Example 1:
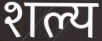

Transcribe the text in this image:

शल्‍य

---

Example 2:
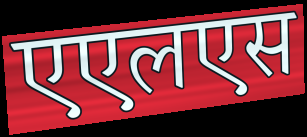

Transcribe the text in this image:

एएलएस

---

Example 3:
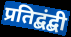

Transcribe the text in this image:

प्रतिद्बंद्बी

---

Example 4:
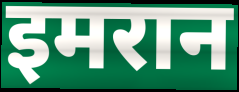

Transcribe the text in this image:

इमरान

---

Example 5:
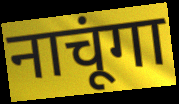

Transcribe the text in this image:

नाचूंगा